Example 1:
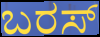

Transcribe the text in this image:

ಬರಸ್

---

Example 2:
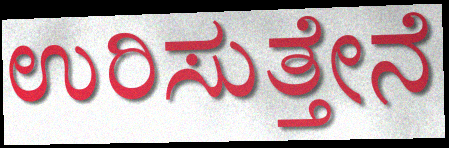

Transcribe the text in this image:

ಉರಿಸುತ್ತೇನೆ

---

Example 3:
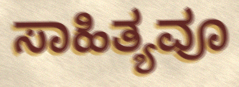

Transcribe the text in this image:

ಸಾಹಿತ್ಯವೂ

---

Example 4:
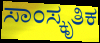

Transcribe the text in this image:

ಸಾಂಸ್ಕೃತಿಕ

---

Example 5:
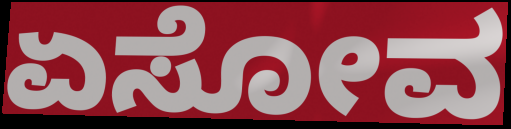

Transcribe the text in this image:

ಏಸೋವ